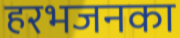
हरभजनका